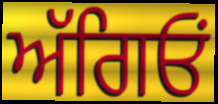
ਅੱਗਿਓਂ